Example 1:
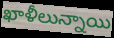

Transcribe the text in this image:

ఖాళీలున్నాయి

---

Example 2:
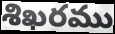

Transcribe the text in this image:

శిఖరము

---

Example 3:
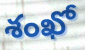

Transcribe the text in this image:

శంఖో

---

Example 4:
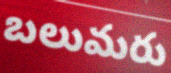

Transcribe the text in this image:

బలుమరు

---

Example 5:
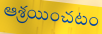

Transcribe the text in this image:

ఆశ్రయించటం